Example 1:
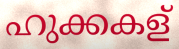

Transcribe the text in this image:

ഹുക്കകള്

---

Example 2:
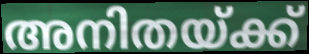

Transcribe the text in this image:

അനിതയ്ക്ക്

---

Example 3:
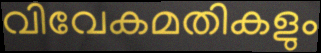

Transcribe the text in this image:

വിവേകമതികളും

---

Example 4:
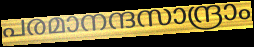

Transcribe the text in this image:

പരമാനന്ദസാന്ദ്രാം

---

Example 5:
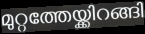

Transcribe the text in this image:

മുറ്റത്തേയ്ക്കിറങ്ങി